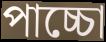
পাচ্চো